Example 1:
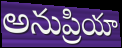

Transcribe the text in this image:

అనుప్రియా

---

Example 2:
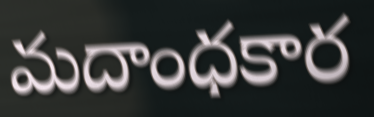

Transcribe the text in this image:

మదాంధకార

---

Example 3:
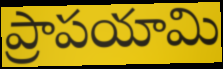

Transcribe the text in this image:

ప్రాపయామి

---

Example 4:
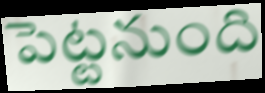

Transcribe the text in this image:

పెట్టనుంది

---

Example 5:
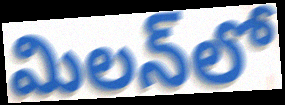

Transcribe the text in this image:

మిలన్‌లో